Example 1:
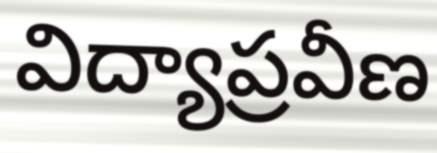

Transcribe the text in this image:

విద్యాప్రవీణ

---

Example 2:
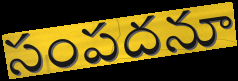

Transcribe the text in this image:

సంపదనూ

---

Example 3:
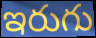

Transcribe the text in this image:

ఇరుగు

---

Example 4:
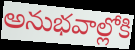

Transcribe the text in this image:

అనుభవాల్లోకి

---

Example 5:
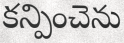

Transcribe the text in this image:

కన్పించెను